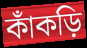
কাঁকড়ি